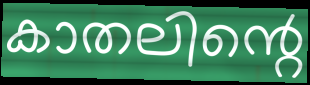
കാതലിന്റെ